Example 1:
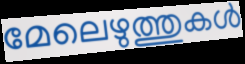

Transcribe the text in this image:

മേലെഴുത്തുകൾ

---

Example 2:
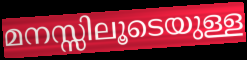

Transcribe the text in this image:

മനസ്സിലൂടെയുള്ള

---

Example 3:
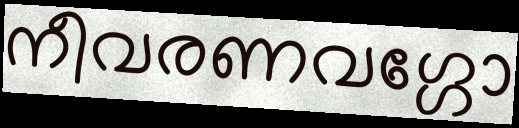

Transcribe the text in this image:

നീവരണവഗ്ഗോ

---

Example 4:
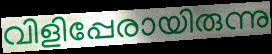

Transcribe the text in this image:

വിളിപ്പേരായിരുന്നു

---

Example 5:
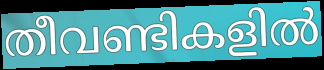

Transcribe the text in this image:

തീവണ്ടികളിൽ